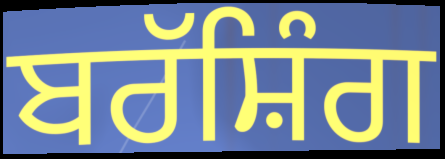
ਬਰੱਸ਼ਿੰਗ